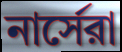
নার্সেরা